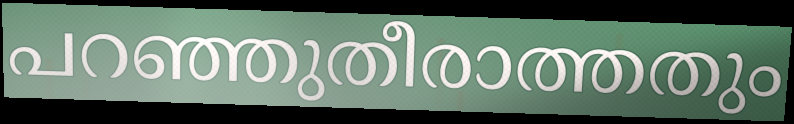
പറഞ്ഞുതീരാത്തതും